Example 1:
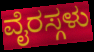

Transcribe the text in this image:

ವೈರಸ್ಗಳು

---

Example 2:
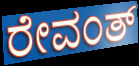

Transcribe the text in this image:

ರೇವಂತ್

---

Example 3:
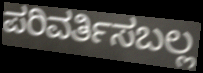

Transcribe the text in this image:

ಪರಿವರ್ತಿಸಬಲ್ಲ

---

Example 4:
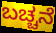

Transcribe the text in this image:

ಬಚ್ಚನೆ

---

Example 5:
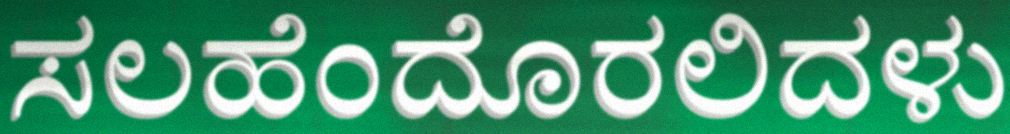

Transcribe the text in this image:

ಸಲಹೆಂದೊರಲಿದಳು